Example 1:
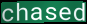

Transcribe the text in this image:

chased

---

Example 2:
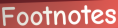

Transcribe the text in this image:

Footnotes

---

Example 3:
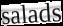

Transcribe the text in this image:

salads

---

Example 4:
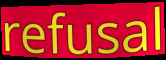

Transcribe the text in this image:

refusal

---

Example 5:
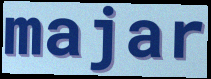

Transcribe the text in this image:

majar